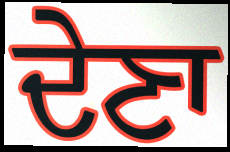
ਦੇਣਾ